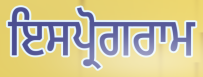
ਇਸਪ੍ਰੋਗਰਾਮ